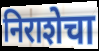
निराशेचा